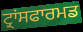
ਟ੍ਰਾਂਸਫਾਰਮਡ